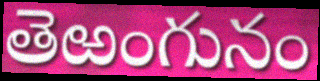
తెఱంగునం